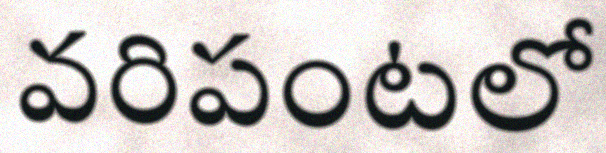
వరిపంటలో